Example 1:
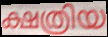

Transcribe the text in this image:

ക്ഷത്രിയ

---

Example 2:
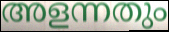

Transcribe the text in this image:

അളന്നതും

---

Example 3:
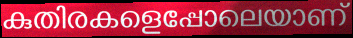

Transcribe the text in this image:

കുതിരകളെപ്പോലെയാണ്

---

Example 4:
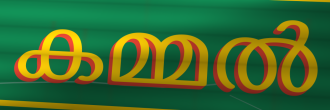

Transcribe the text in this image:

കമ്മൽ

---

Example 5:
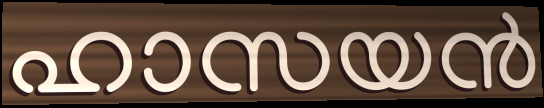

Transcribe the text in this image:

ഹാസയൻ